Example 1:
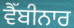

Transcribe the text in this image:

ਵੈੱਬੀਨਾਰ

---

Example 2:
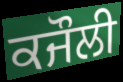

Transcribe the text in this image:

ਕਜੌਲੀ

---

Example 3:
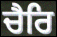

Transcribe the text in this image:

ਚੈਰਿ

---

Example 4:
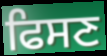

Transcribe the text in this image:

ਫਿਸਣ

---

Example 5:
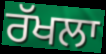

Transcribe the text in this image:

ਰੱਖਲਾ